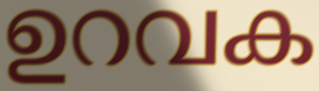
ഉറവക